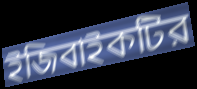
ইজিবাইকটির